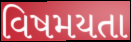
વિષમયતા